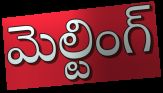
మెల్టింగ్